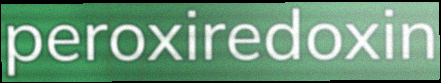
peroxiredoxin